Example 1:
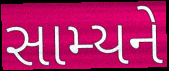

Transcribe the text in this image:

સામ્યને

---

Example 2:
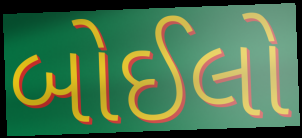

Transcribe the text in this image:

બોઈલો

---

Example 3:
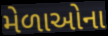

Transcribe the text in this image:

મેળાઓના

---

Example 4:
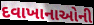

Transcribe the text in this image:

દવાખાનાઓની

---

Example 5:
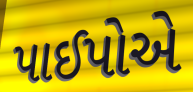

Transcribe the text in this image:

પાઈપોએ